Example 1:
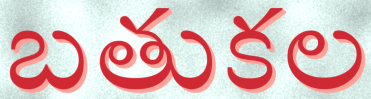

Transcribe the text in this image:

బతుకల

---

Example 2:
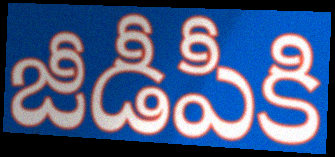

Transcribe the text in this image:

జీడీపీకి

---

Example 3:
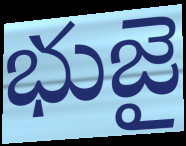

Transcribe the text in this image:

భుజై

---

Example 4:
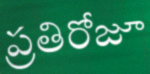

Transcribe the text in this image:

ప్రతిరోజూ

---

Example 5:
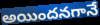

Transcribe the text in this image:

అయిందనగానే